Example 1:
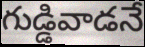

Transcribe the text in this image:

గుడ్డివాడనే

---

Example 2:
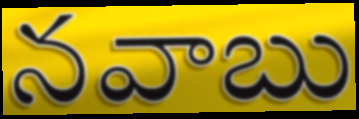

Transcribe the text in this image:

నవాబు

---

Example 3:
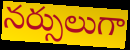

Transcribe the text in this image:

నర్సులుగా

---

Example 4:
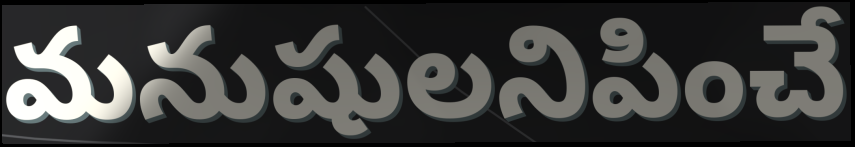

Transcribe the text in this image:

మనుషులనిపించే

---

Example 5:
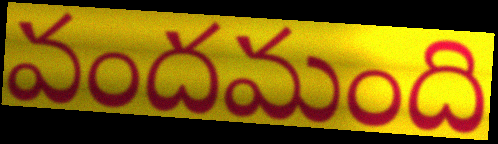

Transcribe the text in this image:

వందమంది